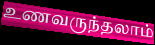
உணவருந்தலாம்